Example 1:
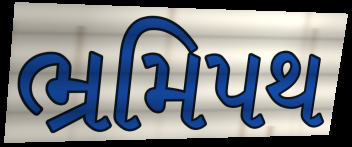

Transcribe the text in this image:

ભ્રમિપથ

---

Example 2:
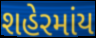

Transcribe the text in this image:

શહેરમાંય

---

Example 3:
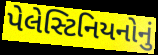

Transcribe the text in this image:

પેલેસ્ટિનિયનોનું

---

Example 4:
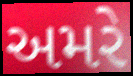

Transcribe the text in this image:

અમરે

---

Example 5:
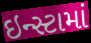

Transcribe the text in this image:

ઇન્સ્ટામાં